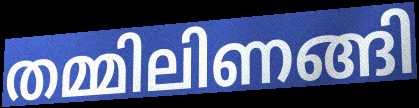
തമ്മിലിണങ്ങി